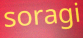
soragi